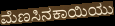
ಮೆಣಸಿನಕಾಯಿಯು